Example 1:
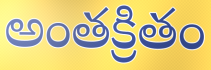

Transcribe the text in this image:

అంతక్రితం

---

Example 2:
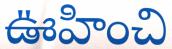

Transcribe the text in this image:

ఊహించి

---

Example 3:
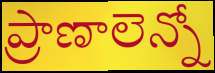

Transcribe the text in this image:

ప్రాణాలెన్నో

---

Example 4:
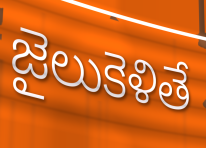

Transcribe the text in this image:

జైలుకెళితే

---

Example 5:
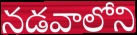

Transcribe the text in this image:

నడవాలోని